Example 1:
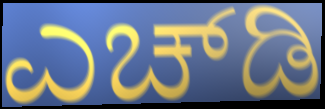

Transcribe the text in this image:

ಎಚ್‍ಡಿ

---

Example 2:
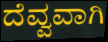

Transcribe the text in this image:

ದೆವ್ವವಾಗಿ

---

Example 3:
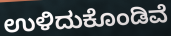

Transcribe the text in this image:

ಉಳಿದುಕೊಂಡಿವೆ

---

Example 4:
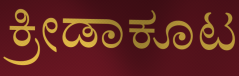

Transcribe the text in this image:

ಕ್ರೀಡಾಕೂಟ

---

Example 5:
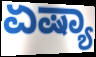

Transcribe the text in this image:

ಏಷ್ಯಾ